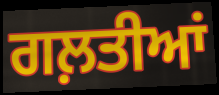
ਗਲ਼ਤੀਆਂ